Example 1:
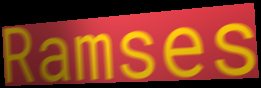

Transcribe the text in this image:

Ramses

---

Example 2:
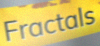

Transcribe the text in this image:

Fractals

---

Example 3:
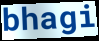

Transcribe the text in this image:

bhagi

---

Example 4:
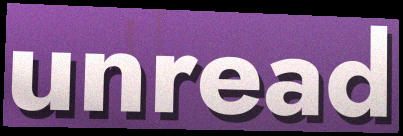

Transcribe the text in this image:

unread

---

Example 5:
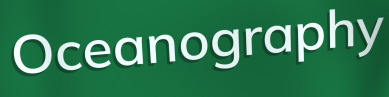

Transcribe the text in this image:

Oceanography